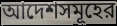
আদেশসমূহের